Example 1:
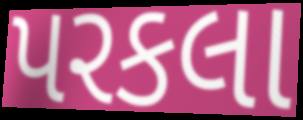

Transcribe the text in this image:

પરકલા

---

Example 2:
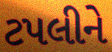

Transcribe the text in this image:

ટપલીને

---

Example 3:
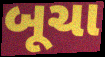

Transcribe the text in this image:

બૂચા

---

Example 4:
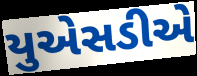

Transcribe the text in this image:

યુએસડીએ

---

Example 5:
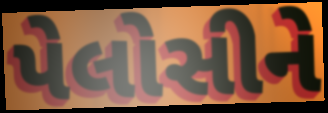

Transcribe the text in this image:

પેલોસીને